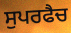
ਸੁਪਰਫੈਚ